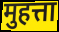
मुहत्ता